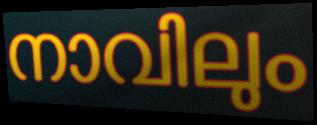
നാവിലും